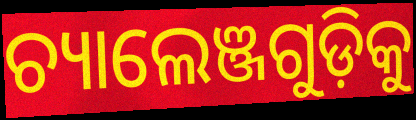
ଚ୍ୟାଲେଞ୍ଜଗୁଡ଼ିକୁ